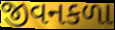
જીવનકળા